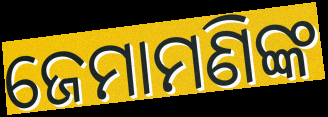
ଜେମାମଣିଙ୍କ